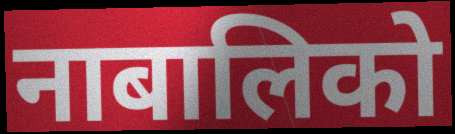
नाबालिको